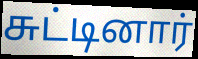
சுட்டினார்